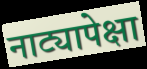
नाट्यापेक्षा